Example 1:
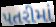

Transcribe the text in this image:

પતરીમાં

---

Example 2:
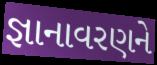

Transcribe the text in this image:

જ્ઞાનાવરણને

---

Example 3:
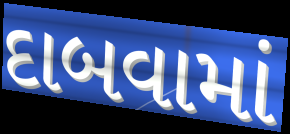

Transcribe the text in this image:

દાબવામાં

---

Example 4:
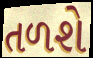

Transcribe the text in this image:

તળશે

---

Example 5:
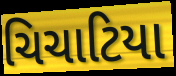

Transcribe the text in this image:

ચિચાટિયા